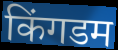
किंगडम